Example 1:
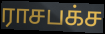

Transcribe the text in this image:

ராசபக்ச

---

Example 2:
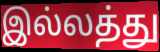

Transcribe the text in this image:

இல்லத்து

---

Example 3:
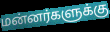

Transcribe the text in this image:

மன்னர்களுக்கு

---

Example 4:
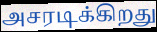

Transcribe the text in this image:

அசரடிக்கிறது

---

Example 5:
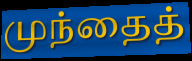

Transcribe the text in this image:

முந்தைத்